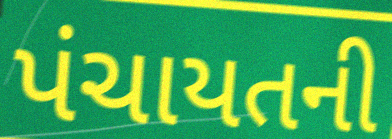
પંચાયતની